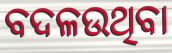
ବଦଳଉଥିବା